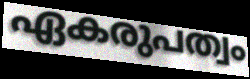
ഏകരുപത്വം